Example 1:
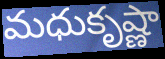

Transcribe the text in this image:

మధుకృష్ణా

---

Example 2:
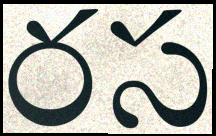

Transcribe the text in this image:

రస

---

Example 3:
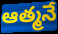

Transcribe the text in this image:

ఆత్మనే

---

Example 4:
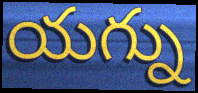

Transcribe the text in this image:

యగ్ను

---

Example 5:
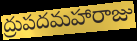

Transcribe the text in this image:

ద్రుపదమహారాజు